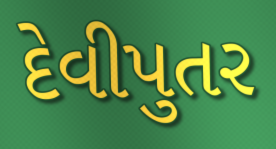
દેવીપુતર